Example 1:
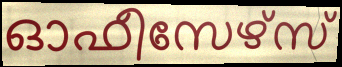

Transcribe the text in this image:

ഓഫീസേഴ്സ്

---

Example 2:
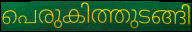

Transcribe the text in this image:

പെരുകിത്തുടങ്ങി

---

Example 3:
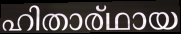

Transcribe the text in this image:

ഹിതാര്ഥായ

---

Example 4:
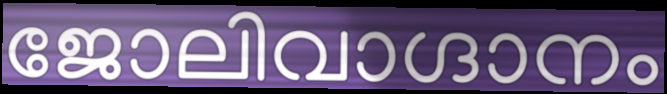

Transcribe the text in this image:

ജോലിവാഗ്ദാനം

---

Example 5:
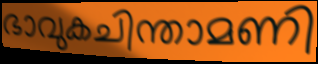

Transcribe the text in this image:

ഭാവുകചിന്താമണി